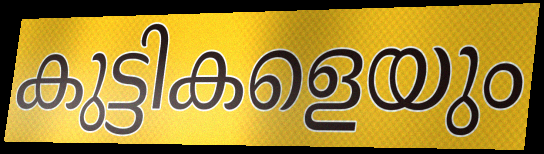
കുട്ടികളെയും